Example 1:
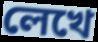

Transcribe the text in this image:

লেখে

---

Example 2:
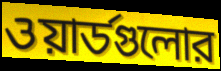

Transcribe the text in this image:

ওয়ার্ডগুলোর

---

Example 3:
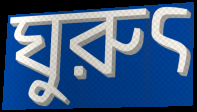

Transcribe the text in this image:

ঘুরুৎ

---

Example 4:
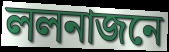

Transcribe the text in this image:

ললনাজনে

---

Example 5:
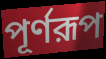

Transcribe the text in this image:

পূর্ণরূপ